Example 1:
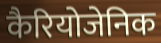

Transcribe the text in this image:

कैरियोजेनिक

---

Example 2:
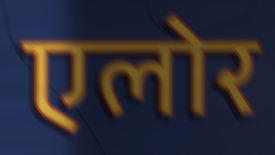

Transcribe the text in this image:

एलोर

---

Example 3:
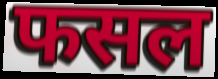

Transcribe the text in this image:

फसल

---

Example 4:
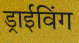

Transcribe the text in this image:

ड्राईविंग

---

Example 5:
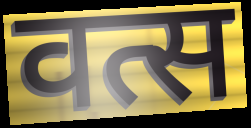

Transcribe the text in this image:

वत्स